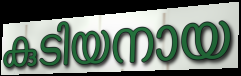
കുടിയനായ